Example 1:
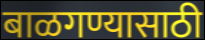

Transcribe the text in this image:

बाळगण्यासाठी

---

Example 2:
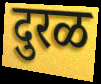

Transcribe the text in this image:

दुरळ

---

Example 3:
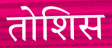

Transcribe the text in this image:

तोशिस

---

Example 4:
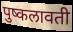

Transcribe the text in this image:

पुष्कलावती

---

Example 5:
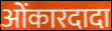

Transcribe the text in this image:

ओंकारदादा